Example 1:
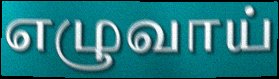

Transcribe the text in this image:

எழுவாய்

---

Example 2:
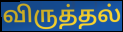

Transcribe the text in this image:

விருத்தல்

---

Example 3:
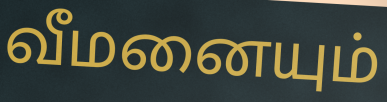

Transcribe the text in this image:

வீமனையும்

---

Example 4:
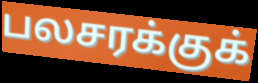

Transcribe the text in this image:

பலசரக்குக்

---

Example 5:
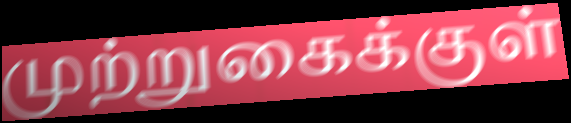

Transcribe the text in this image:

முற்றுகைக்குள்